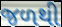
જળથી